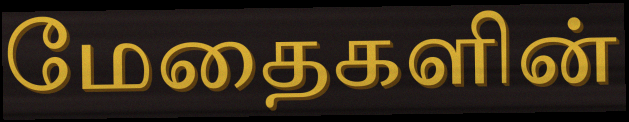
மேதைகளின்